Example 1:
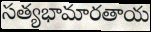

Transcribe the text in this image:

సత్యభామారతాయ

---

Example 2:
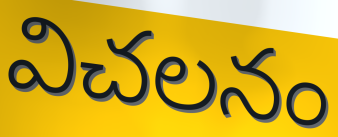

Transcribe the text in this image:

విచలనం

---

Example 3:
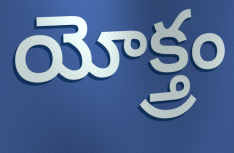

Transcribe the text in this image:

యోక్త్రం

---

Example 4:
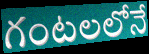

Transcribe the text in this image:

గంటలలోనే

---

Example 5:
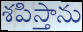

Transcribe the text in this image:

శపిస్తాను